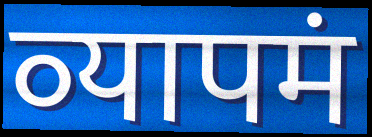
व्‍यापमं